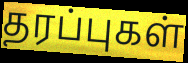
தரப்புகள்